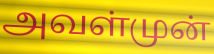
அவள்முன்